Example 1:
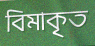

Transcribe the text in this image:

বিমাকৃত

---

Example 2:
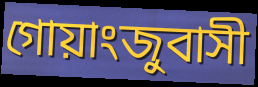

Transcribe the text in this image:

গোয়াংজুবাসী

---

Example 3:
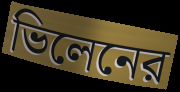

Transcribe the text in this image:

ভিলেনের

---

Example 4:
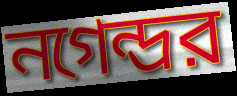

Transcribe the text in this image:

নগেন্দ্রর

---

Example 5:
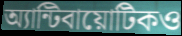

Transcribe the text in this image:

অ্যান্টিবায়োটিকও